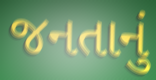
જનતાનું